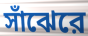
সাঁঝেরে